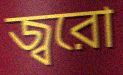
জ্বরো